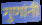
गुणांनी